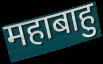
महाबाहु